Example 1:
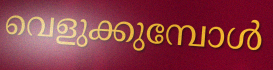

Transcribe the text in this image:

വെളുക്കുമ്പോൾ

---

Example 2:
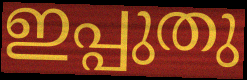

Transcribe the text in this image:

ഇപ്പുതു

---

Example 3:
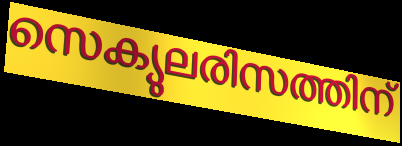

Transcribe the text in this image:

സെക്യുലരിസത്തിന്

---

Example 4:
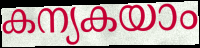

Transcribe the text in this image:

കന്യകയാം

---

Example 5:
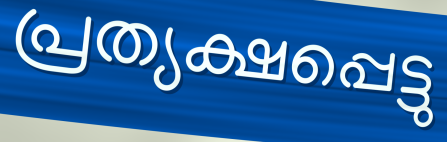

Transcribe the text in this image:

പ്രത്യക്ഷപ്പെട്ടു